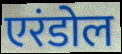
एरंडोल